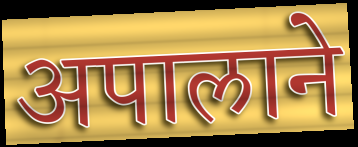
अपालाने